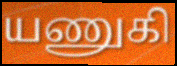
யணுகி